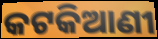
କଟକିଆଣୀ